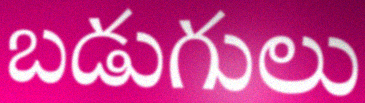
బడుగులు